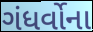
ગંધર્વોના